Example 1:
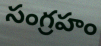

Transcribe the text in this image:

సంగ్రహం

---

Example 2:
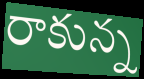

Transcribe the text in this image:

రాకున్న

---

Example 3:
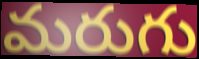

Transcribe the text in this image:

మరుగు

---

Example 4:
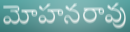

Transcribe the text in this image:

మోహనరావు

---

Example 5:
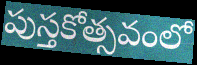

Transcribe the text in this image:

పుస్తకోత్సవంలో